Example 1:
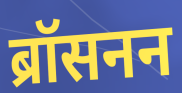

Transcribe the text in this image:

ब्रॉसनन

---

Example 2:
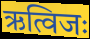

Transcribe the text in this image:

ऋत्विजः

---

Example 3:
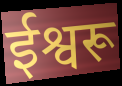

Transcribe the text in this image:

ईश्वरू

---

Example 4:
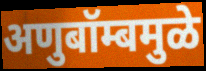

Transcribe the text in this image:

अणुबॉम्बमुळे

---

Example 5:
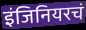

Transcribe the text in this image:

इंजिनियरचं